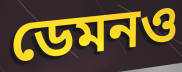
ডেমনও